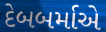
દેબબર્માએ